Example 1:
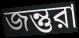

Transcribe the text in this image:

জন্তুরা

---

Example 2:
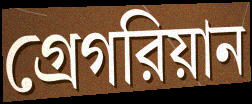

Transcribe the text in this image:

গ্রেগরিয়ান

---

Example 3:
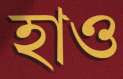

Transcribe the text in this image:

হাও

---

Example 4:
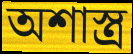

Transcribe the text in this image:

অশাস্ত্র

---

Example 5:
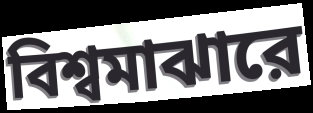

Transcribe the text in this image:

বিশ্বমাঝারে